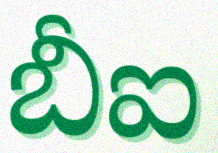
బీఐ